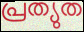
പ്രത്യുത